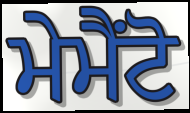
ਮੇਮੈਂਟੋ